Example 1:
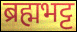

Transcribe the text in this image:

ब्रह्मभट्ट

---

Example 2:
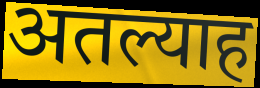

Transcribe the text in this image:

अतल्याह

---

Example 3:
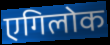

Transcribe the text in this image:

एगिलोक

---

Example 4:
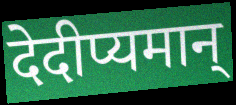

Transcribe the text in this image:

देदीप्यमान्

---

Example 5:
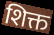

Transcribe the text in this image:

शिक्त